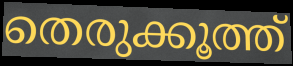
തെരുക്കൂത്ത്